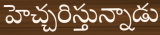
హెచ్చరిస్తున్నాడు